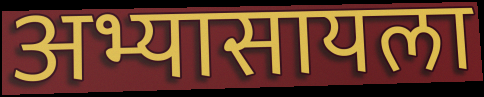
अभ्यासायला